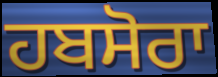
ਹਬਸੋਰਾ